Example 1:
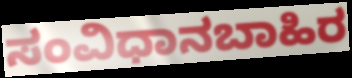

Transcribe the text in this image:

ಸಂವಿಧಾನಬಾಹಿರ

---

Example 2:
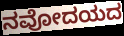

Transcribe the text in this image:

ನವೋದಯದ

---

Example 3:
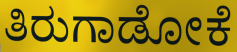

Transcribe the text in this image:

ತಿರುಗಾಡೋಕೆ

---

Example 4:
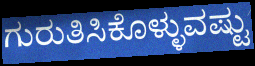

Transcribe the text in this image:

ಗುರುತಿಸಿಕೊಳ್ಳುವಷ್ಟು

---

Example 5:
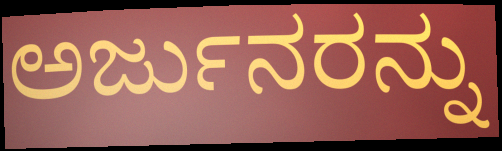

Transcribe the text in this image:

ಅರ್ಜುನರನ್ನು